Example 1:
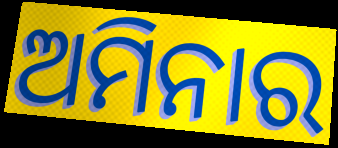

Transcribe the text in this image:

ଅମିନାର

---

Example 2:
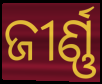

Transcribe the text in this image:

ଜୀର୍ଣ୍ଣ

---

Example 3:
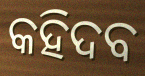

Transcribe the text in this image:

କହିଦବ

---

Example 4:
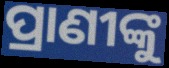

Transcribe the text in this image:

ପ୍ରାଣୀଙ୍କୁ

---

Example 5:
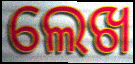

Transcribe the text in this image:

ଲେଖ